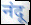
नंदू